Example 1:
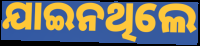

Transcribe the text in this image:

ଯାଇନଥିଲେ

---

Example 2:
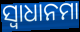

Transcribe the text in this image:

ସ୍ଵାଧାନମା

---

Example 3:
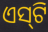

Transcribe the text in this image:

ଏସ୍‌ଟି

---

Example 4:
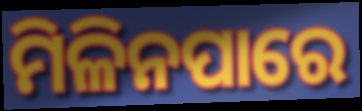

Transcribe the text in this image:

ମିଳିନପାରେ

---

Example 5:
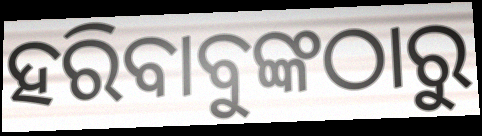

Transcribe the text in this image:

ହରିବାବୁଙ୍କଠାରୁ